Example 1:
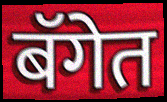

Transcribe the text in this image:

बॅगेत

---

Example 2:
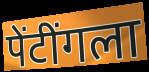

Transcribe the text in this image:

पेंटींगला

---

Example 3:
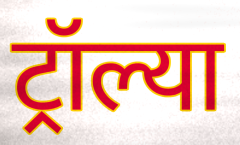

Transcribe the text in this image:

ट्रॉल्या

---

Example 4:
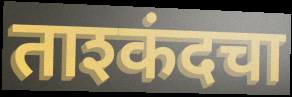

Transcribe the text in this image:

ताश्कंदचा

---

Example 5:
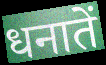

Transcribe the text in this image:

धनातें